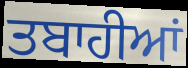
ਤਬਾਹੀਆਂ